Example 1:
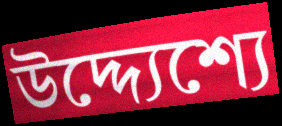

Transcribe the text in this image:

উদ্দ্যেশ্যে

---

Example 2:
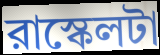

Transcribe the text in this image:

রাস্কেলটা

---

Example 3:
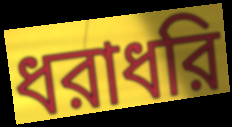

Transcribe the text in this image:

ধরাধরি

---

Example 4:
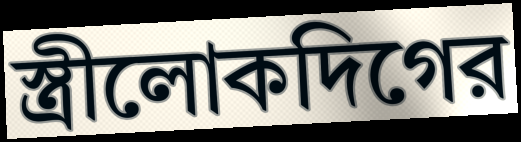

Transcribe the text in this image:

স্ত্রীলোকদিগের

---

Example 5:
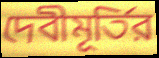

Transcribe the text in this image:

দেবীমূর্তির